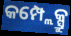
କମ୍ପ୍ଲେକ୍ସ୍ରୁ